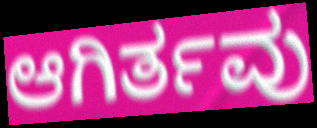
ಆಗಿರ್ತವು